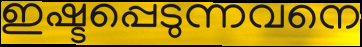
ഇഷ്ടപ്പെടുന്നവനെ